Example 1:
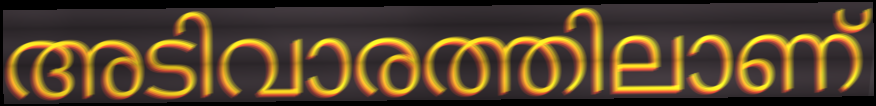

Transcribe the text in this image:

അടിവാരത്തിലാണ്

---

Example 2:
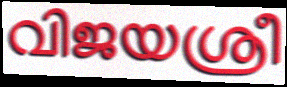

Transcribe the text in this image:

വിജയശ്രീ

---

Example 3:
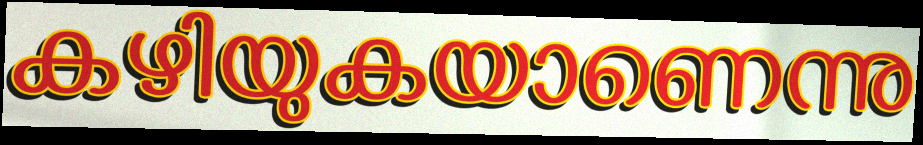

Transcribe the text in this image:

കഴിയുകയാണെന്നു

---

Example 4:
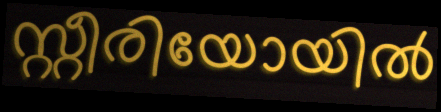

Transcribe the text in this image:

സ്റ്റീരിയോയിൽ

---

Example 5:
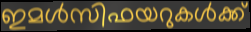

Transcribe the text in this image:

ഇമൾസിഫയറുകൾക്ക്